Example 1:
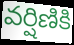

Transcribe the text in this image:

వర్షిణికి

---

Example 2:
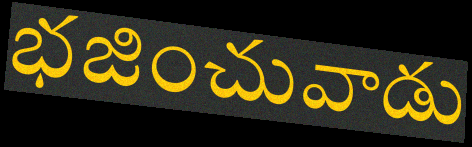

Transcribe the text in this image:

భజించువాడు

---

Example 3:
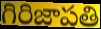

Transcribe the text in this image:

గిరిజాపతి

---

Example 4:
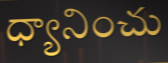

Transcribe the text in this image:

ధ్యానించు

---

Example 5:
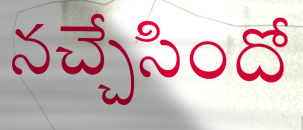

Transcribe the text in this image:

నచ్చేసిందో